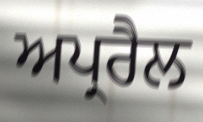
ਅਪ੍ਰਰੈਲ